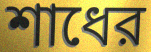
শাধের